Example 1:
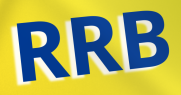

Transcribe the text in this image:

RRB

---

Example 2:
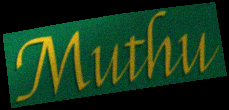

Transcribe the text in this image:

Muthu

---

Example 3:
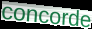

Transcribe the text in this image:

concorde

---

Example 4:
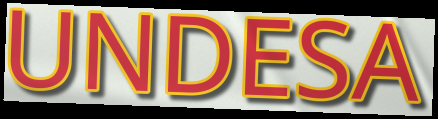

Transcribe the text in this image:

UNDESA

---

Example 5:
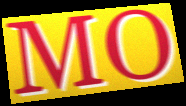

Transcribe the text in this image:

MO